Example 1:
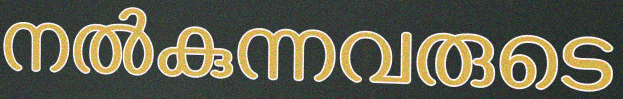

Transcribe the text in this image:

നൽകുന്നവരുടെ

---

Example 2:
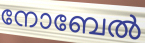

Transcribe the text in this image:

നോബേൽ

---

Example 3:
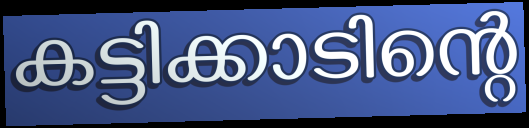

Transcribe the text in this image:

കട്ടിക്കാടിന്റെ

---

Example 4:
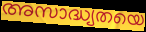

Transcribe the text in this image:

അസാദ്ധ്യതയെ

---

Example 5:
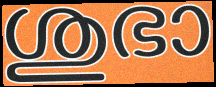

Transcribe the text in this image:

ശുഭാ